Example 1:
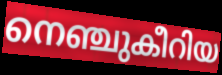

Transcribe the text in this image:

നെഞ്ചുകീറിയ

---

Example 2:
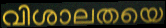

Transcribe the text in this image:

വിശാലതയെ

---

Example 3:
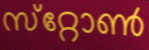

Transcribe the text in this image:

സ്‌റ്റോൺ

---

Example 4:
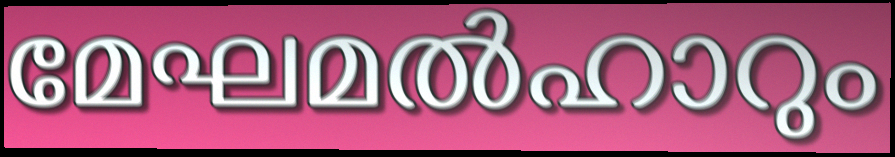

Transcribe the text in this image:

മേഘമൽഹാറും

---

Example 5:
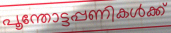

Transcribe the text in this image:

പൂന്തോട്ടപ്പണികൾക്ക്